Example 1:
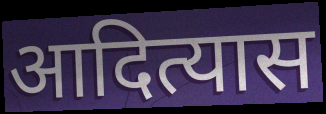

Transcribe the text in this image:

आदित्यास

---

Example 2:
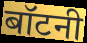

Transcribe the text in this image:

बॉटनी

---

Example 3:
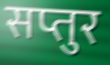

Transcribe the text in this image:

सप्तुर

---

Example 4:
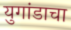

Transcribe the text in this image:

युगांडाचा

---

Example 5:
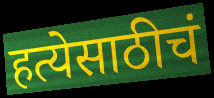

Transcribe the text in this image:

हत्येसाठीचं